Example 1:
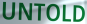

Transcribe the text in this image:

UNTOLD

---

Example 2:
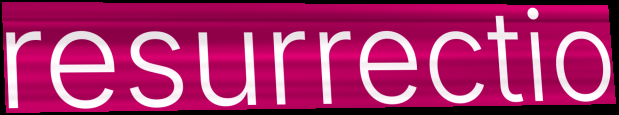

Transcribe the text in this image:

resurrectio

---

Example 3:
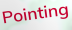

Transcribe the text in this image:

Pointing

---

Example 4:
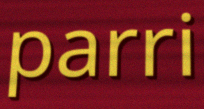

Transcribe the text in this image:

parri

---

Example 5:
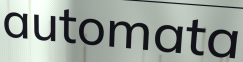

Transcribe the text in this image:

automata